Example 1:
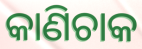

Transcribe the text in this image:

କାଣିଚାକ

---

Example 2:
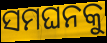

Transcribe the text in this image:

ସମଘନକୁ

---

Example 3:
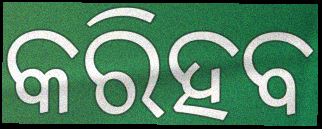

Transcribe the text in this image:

କରିହବ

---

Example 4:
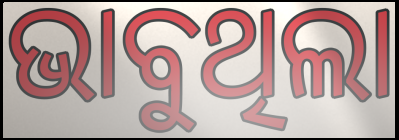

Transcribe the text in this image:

ଭାବୁଥିଲା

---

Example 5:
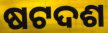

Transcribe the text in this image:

ଷଟଦଶ